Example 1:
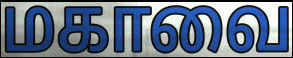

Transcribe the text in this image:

மகாவை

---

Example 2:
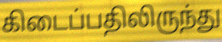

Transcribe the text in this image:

கிடைப்பதிலிருந்து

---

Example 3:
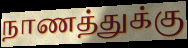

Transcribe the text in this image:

நாணத்துக்கு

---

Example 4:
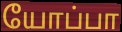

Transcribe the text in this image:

யோப்பா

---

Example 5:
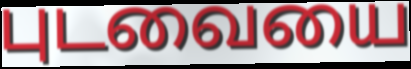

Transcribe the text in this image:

புடவையை